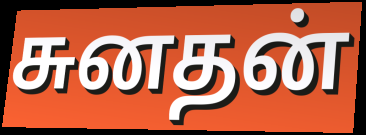
சுனதன்